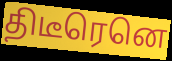
திடீரெனெ